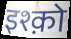
इश्क़ो